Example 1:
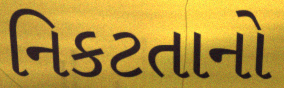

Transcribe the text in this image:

નિકટતાનો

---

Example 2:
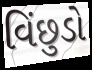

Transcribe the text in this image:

વિંછુડો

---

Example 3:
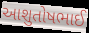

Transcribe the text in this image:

આશુતોષભાઈ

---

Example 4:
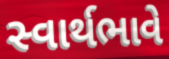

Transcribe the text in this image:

સ્વાર્થભાવે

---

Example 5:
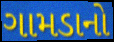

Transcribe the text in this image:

ગામડાનો